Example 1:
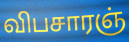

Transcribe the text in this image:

விபசாரஞ்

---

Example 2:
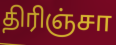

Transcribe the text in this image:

திரிஞ்சா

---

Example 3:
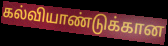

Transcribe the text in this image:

கல்வியாண்டுக்கான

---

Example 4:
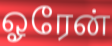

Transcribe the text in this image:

ஓரேன்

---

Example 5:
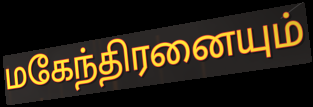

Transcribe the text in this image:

மகேந்திரனையும்